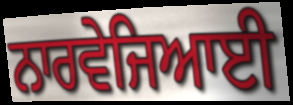
ਨਾਰਵੇਜਿਆਈ